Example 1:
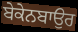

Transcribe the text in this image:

ਬੇਕੇਨਬਾਉਰ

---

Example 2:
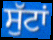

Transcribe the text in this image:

ਸੁੱਟਾਂ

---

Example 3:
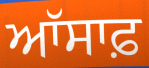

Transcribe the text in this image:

ਆੱਸਾਫ਼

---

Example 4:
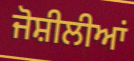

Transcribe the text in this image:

ਜੋਸ਼ੀਲੀਆਂ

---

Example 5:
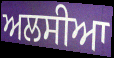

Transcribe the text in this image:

ਅਲਸੀਆ